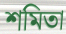
শমিতা